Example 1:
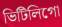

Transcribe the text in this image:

ভিটিলিগো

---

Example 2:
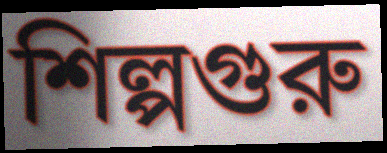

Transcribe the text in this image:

শিল্পগুরু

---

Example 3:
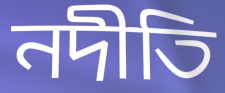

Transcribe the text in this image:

নদীতি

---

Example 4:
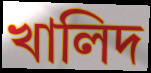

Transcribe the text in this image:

খালিদ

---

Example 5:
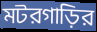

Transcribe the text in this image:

মটরগাড়ির